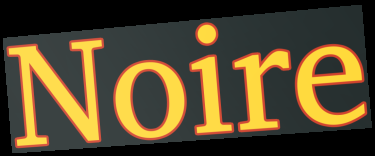
Noire